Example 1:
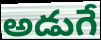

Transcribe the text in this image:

అడుగే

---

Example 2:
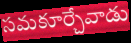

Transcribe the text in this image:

సమకూర్చేవాడు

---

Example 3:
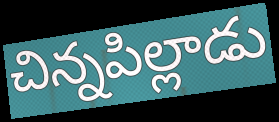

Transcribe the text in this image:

చిన్నపిల్లాడు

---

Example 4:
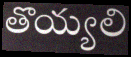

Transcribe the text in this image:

తొయ్యలి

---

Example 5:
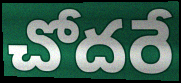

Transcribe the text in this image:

చోదరే